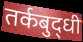
तर्कबुद्धी